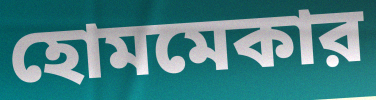
হোমমেকার